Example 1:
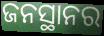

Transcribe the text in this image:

ଜନସ୍ଥାନର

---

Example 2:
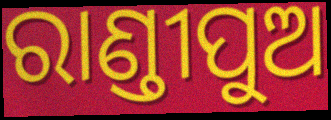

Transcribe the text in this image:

ରାଣ୍ଡୀପୁଅ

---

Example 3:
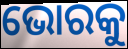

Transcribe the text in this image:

ଭୋରକୁ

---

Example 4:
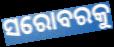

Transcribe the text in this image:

ସରୋବରକୁ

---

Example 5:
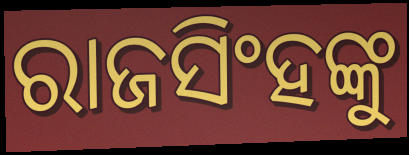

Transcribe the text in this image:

ରାଜସିଂହଙ୍କୁ